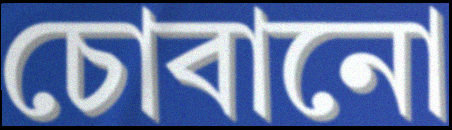
চোবানো